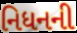
નિધનની